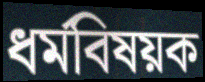
ধর্মবিষয়ক